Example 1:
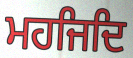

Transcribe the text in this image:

ਮਹਜਿਦਿ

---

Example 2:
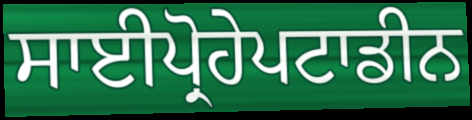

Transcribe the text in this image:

ਸਾਈਪ੍ਰੋਹੇਪਟਾਡੀਨ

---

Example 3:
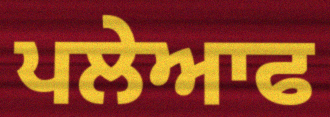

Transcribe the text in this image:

ਪਲੇਆਫ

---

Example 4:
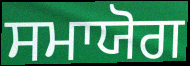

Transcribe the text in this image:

ਸਮਾਯੋਗ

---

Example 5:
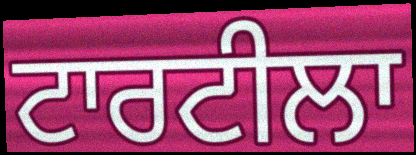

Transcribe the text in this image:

ਟਾਰਟੀਲਾ